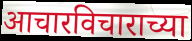
आचारविचाराच्या